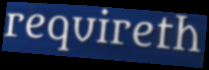
requireth